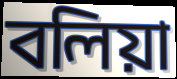
বলিয়া